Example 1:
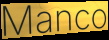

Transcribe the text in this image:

Manco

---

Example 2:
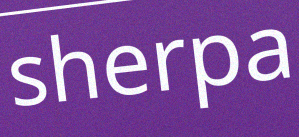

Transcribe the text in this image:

sherpa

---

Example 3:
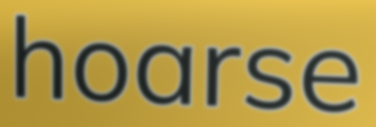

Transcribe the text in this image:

hoarse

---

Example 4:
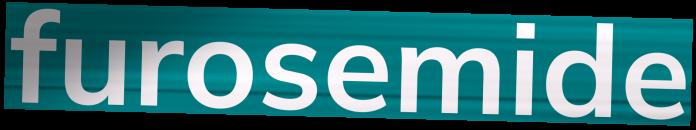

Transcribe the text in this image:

furosemide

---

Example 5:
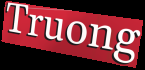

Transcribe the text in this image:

Truong